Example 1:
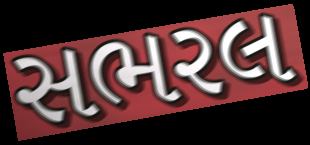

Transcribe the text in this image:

સભરલ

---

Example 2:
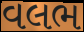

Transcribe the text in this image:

વલભ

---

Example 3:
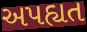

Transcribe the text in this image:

અપહ્યત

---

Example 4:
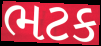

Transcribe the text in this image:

ભટક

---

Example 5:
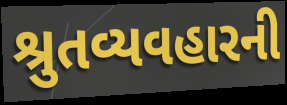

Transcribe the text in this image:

શ્રુતવ્યવહારની